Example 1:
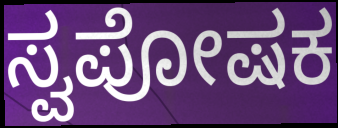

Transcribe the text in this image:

ಸ್ವಪೋಷಕ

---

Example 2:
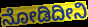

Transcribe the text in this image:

ನೋಡಿದೀನಿ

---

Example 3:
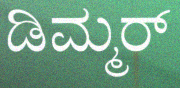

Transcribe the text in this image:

ಡಿಮ್ಮರ್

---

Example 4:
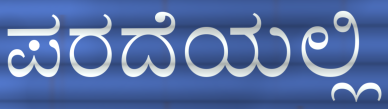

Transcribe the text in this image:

ಪರದೆಯಲ್ಲಿ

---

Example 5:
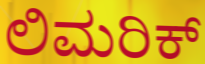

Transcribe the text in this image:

ಲಿಮರಿಕ್